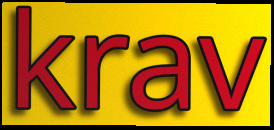
krav